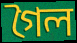
গৈল